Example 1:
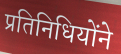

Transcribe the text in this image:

प्रतिनिधियोंने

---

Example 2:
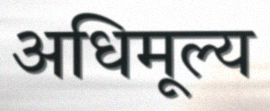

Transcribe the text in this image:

अधिमूल्य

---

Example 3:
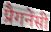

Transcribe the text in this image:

प्रैगनेंसी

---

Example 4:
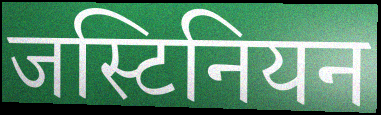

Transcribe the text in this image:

जस्टिनियन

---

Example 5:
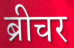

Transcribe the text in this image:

ब्रीचर